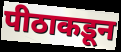
पीठाकडून